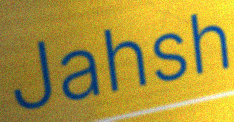
Jahsh